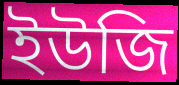
ইউজি